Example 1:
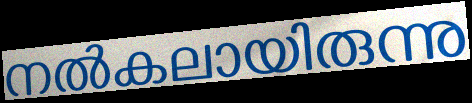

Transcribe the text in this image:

നൽകലായിരുന്നു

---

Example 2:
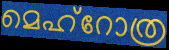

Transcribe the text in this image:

മെഹ്റോത്ര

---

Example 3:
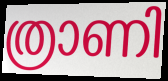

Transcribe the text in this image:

ത്രാണി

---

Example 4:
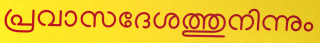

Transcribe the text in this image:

പ്രവാസദേശത്തുനിന്നും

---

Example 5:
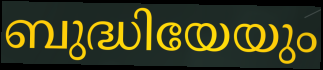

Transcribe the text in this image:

ബുദ്ധിയേയും